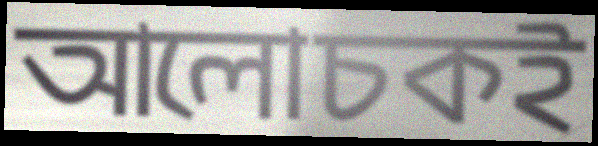
আলোচকই